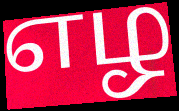
எழ